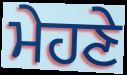
ਮੇਹਣੇ